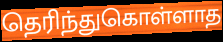
தெரிந்துகொள்ளாத